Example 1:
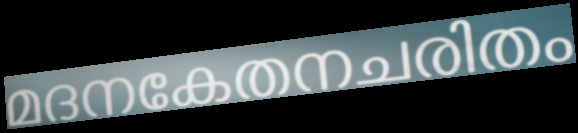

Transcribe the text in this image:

മദനകേതനചരിതം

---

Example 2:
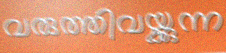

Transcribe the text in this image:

വരുത്തിവയ്ക്കുന്ന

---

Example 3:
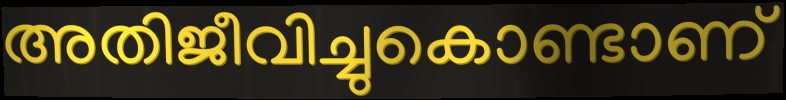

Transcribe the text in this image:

അതിജീവിച്ചുകൊണ്ടാണ്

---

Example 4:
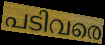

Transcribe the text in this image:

പടിവരെ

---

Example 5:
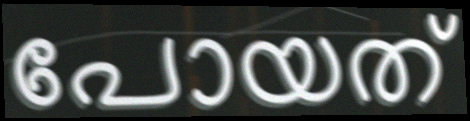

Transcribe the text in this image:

പോയത്